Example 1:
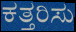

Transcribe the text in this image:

ಕತ್ತರಿಸು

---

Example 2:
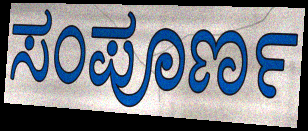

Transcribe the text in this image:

ಸಂಪೂರ್ಣ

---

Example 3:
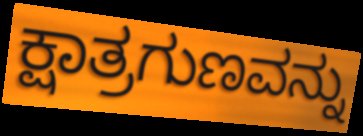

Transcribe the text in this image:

ಕ್ಷಾತ್ರಗುಣವನ್ನು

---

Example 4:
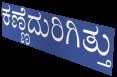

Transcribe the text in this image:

ಕಣ್ಣೆದುರಿಗಿತ್ತು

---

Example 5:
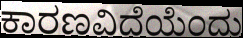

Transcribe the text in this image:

ಕಾರಣವಿದೆಯೆಂದು